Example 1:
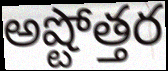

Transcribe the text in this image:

అష్టోత్తర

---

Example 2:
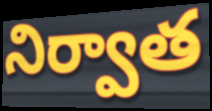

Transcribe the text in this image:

నిర్వాత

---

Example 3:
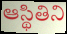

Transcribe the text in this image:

ఆస్థితిని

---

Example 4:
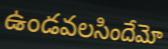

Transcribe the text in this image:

ఉండవలసిందేమో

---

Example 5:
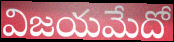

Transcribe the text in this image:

విజయమేదో